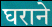
घराने